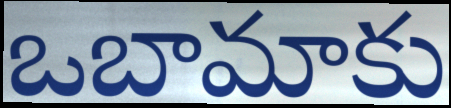
ఒబామాకు